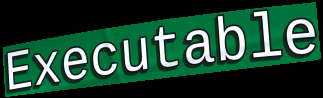
Executable